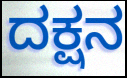
ದಕ್ಷನ